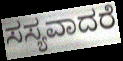
ಸಸ್ಯವಾದರೆ